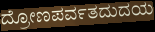
ದ್ರೋಣಪರ್ವತದುದಯ